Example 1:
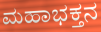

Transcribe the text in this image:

ಮಹಾಭಕ್ತನ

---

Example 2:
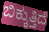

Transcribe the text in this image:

ಬಿಕ್ಕುತ್ತಿದೆ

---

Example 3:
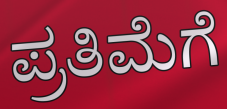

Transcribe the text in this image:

ಪ್ರತಿಮೆಗೆ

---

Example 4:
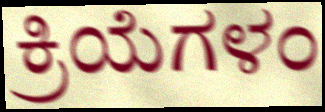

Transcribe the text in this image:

ಕ್ರಿಯೆಗಳಂ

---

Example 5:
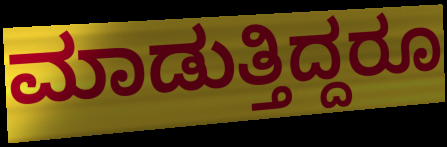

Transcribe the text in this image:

ಮಾಡುತ್ತಿದ್ದರೂ